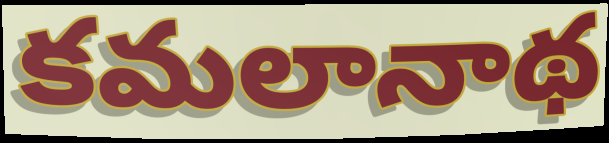
కమలానాథ